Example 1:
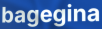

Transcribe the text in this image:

bagegina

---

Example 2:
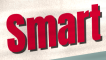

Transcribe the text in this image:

Smart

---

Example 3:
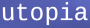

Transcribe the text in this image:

utopia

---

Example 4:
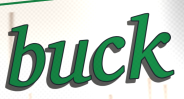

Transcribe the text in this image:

buck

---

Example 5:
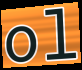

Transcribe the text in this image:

ol